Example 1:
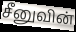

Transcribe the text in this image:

சீனுவின்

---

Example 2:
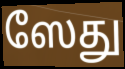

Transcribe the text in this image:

ஸேது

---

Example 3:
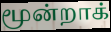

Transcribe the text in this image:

மூன்றாக்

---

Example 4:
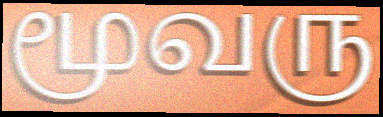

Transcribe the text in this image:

மூவரு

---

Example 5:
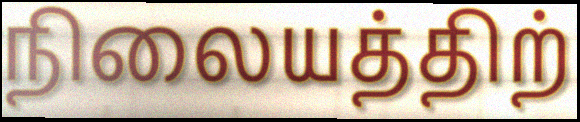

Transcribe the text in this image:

நிலையத்திற்